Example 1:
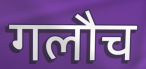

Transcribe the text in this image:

गलौच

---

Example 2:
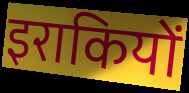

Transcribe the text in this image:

इराकियों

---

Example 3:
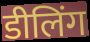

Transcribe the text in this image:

डीलिंग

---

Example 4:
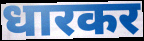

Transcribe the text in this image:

धारकर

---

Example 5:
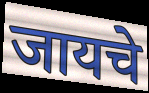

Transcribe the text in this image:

जायचे